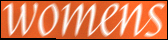
womens